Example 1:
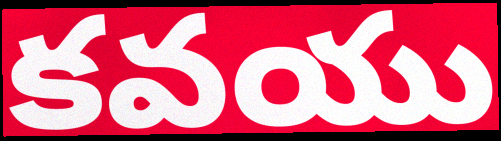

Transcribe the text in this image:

కవయు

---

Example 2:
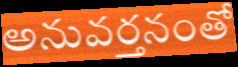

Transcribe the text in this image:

అనువర్తనంతో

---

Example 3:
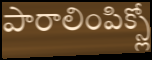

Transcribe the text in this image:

పారాలింపిక్స్లో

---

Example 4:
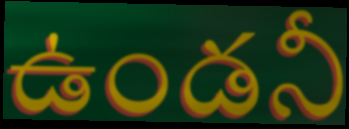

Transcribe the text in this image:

ఉండనీ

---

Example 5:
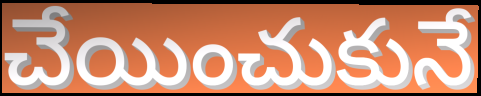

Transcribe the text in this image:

చేయించుకునే